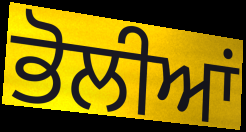
ਭੋਲੀਆਂ